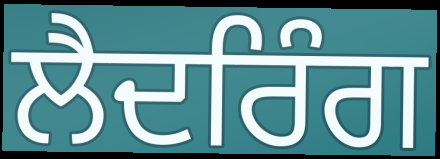
ਲੈਦਰਿੰਗ